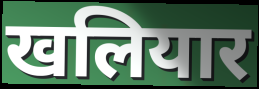
खलियार